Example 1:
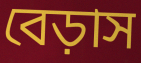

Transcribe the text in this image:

বেড়াস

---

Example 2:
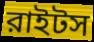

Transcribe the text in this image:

রাইটস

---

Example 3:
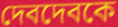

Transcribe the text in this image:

দেবদেবকে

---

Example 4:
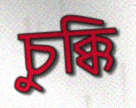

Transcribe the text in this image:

চুক্কি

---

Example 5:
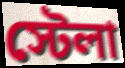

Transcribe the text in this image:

স্টেলা